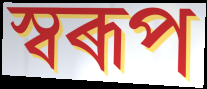
স্বৰূপ